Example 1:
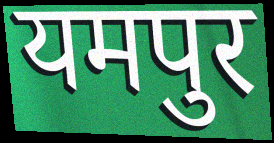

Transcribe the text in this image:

यमपुर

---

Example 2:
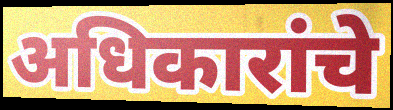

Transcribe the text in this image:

अधिकारांचे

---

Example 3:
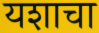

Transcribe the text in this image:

यशाचा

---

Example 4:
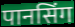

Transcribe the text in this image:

पानसिंग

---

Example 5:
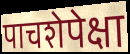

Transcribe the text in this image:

पाचशेपेक्षा